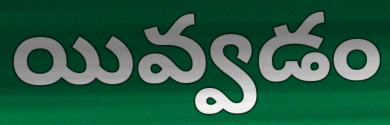
యివ్వడం